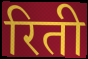
रिती